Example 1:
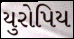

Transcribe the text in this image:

યુરોપિય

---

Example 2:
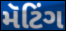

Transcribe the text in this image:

મૅટિંગ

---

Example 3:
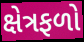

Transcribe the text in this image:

ક્ષેત્રફળો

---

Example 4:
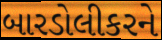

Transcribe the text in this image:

બારડોલીકરને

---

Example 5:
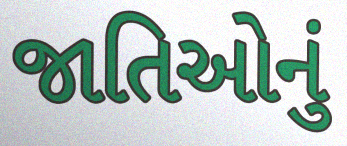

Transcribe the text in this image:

જાતિઓનું